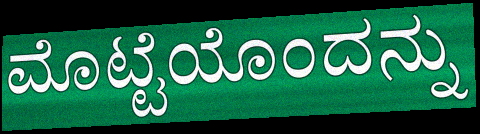
ಮೊಟ್ಟೆಯೊಂದನ್ನು